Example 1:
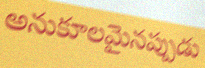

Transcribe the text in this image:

అనుకూలమైనప్పుడు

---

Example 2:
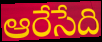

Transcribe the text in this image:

ఆరేసేది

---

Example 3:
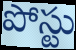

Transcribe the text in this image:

పోస్టు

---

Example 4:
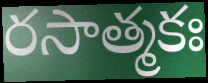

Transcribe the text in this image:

రసాత్మకః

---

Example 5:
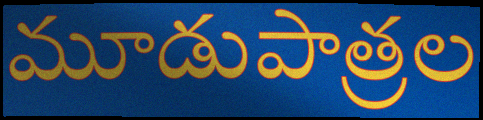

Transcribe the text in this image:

మూడుపాత్రల